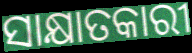
ସାକ୍ଷାତକାରୀ